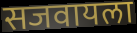
सजवायला